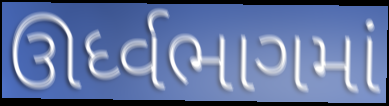
ઊર્ધ્વભાગમાં